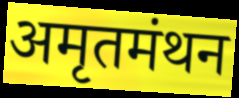
अमृतमंथन